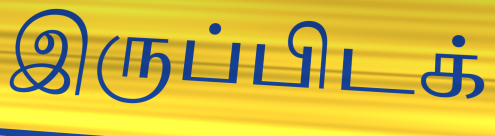
இருப்பிடக்